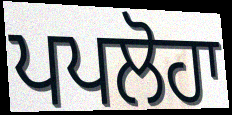
ਪਪਲੋਹਾ